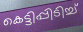
കെട്ടിപ്പിടിച്ച്